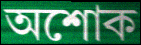
অশোক